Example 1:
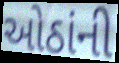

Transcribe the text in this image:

ઓઠાંની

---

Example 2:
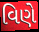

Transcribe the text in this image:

વિણે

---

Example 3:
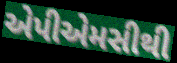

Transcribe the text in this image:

એપીએમસીથી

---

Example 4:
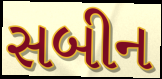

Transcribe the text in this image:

સબીન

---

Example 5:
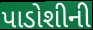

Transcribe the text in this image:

પાડોશીની